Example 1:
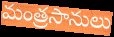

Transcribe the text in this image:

మంత్రసానులు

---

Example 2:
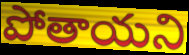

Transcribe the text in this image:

పోతాయని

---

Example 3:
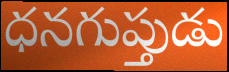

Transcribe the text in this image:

ధనగుప్తుడు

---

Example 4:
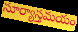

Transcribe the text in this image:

సూర్యాస్తమయం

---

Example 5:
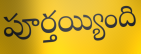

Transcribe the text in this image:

పూర్తయ్యింది